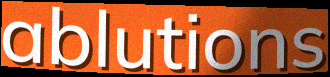
ablutions